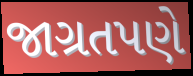
જાગ્રતપણે